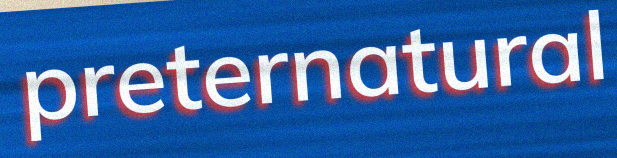
preternatural